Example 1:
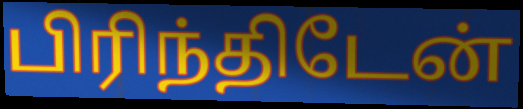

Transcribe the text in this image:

பிரிந்திடேன்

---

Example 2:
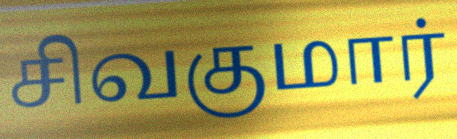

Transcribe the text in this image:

சிவகுமார்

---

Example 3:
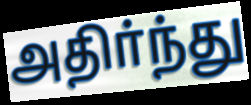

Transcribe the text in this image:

அதிர்ந்து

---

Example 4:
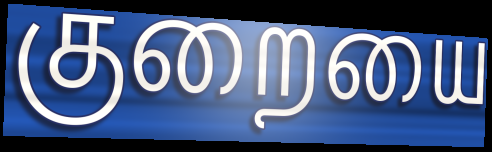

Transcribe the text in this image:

குறையை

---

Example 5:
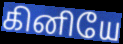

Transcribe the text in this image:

கினியே